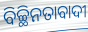
ବିଚ୍ଛିନତାବାଦୀ